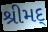
શ્રીમદ્‍